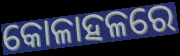
କୋଳାହଳରେ